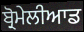
ਬ੍ਰੋਮੇਲੀਆਡ